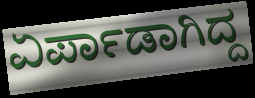
ಏರ್ಪಾಡಾಗಿದ್ದ